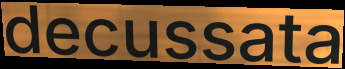
decussata